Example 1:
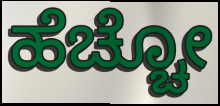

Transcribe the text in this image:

ಹೆಚ್ಚೋ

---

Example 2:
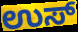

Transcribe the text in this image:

ಉಸ್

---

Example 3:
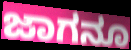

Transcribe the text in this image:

ಜಾಗನೂ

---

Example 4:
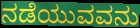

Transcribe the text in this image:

ನಡೆಯುವವನು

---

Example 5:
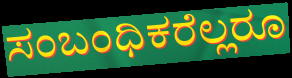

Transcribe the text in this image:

ಸಂಬಂಧಿಕರೆಲ್ಲರೂ